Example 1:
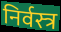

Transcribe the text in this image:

निर्वस्त्र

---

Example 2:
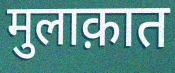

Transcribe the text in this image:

मुलाक़ात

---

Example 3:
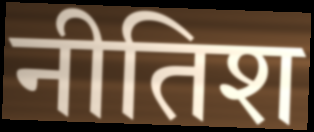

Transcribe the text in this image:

नीतिश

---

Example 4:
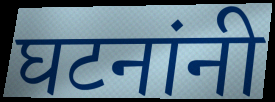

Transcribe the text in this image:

घटनांनी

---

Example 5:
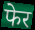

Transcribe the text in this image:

फेर